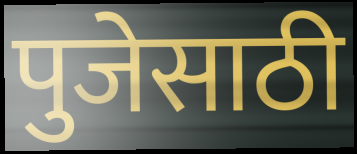
पुजेसाठी